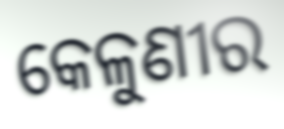
କେଳୁଣୀର